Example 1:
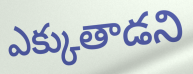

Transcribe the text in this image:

ఎక్కుతాడని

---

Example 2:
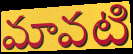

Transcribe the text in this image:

మావటి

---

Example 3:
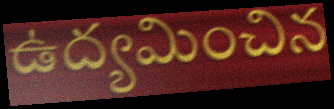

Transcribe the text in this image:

ఉద్యమించిన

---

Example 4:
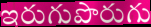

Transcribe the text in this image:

ఇరుగుపొరుగు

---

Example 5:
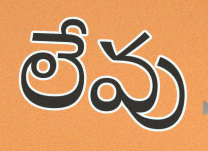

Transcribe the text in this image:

లేవు